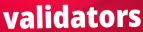
validators